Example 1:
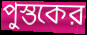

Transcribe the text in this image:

পুস্তকের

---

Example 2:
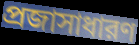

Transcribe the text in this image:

প্রজাসাধারণ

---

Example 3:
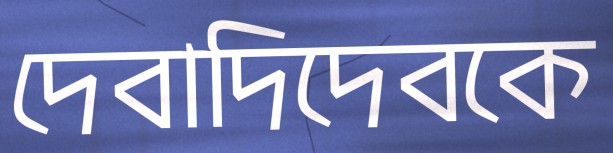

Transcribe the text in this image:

দেবাদিদেবকে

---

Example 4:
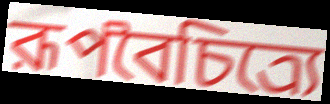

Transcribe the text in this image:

রূপবৈচিত্র্যে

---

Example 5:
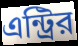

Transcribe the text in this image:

এন্ট্রির